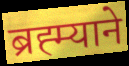
ब्रह्म्याने